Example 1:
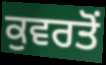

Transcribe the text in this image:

ਕੁਵਰਤੋਂ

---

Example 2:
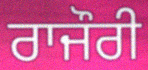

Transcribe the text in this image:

ਰਾਜੌਰੀ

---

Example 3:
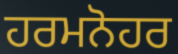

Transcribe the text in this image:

ਹਰਮਨੋਹਰ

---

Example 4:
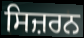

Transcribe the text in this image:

ਸਿਜ਼ਰਨ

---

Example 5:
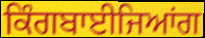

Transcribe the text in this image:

ਕਿੰਗਬਾਈਜਿਆਂਗ